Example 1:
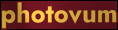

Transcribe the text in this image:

photovum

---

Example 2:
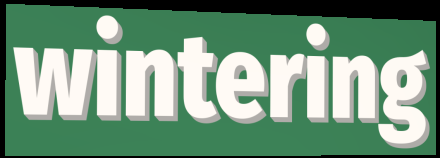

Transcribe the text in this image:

wintering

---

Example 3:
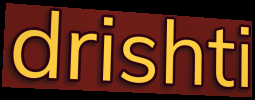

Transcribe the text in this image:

drishti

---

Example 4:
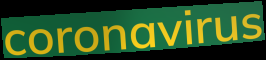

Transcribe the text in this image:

coronavirus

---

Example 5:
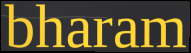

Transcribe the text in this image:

bharam